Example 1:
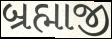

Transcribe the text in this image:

બ્રહ્માજી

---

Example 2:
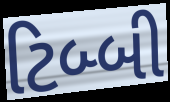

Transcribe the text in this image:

ટિબ્બી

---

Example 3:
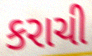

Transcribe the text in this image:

કરાચી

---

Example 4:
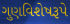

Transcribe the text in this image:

ગુણવિશેષરૂપે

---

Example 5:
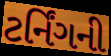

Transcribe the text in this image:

ટર્નિંગની